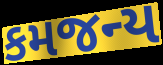
કમજન્ય